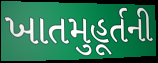
ખાતમુહૂર્તની